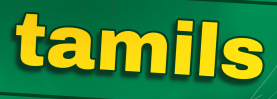
tamils